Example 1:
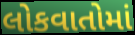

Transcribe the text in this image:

લોકવાતોમાં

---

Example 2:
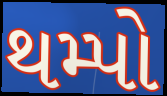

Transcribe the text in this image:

થમ્પો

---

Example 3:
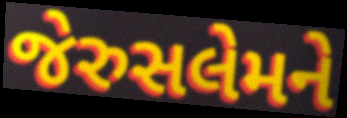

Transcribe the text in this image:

જેરુસલેમને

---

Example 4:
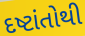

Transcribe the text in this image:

દષ્ટાંતોથી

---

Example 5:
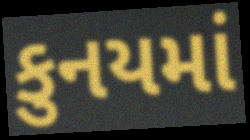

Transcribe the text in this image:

કુનયમાં